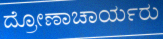
ದ್ರೋಣಾಚಾರ್ಯರು